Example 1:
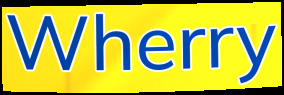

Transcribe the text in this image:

Wherry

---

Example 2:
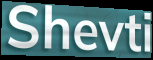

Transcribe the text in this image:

Shevti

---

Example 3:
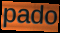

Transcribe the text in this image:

pado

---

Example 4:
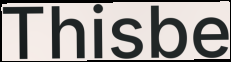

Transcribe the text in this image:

Thisbe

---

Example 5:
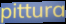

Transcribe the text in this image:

pittura